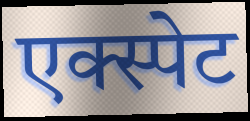
एक्स्पेट